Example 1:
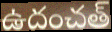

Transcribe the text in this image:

ఉదంచత్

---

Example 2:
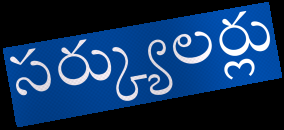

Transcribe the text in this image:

సర్క్యులర్లు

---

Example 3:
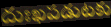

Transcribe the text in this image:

దుఃఖపడుటకు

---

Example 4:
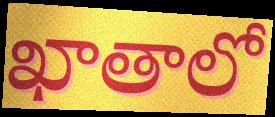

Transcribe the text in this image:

ఖాతాలో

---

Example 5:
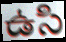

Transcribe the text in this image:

ఉసి